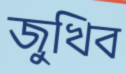
জুখিব